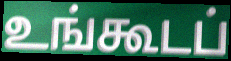
உங்கூடப்